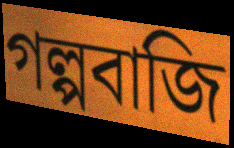
গল্পবাজি